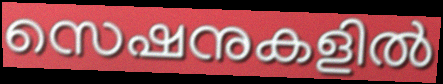
സെഷനുകളിൽ